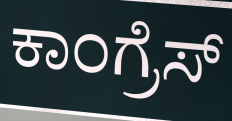
ಕಾಂಗ್ರೆಸ್